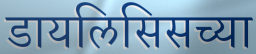
डायलिसिसच्या